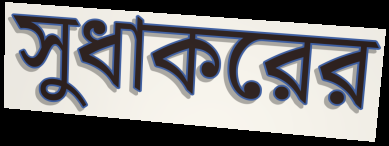
সুধাকরের